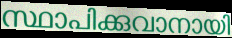
സ്ഥാപിക്കുവാനായി